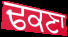
ਢਕਣਾ